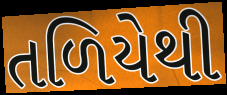
તળિયેથી